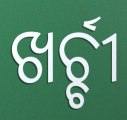
ଖର୍ଚ୍ଚୀ